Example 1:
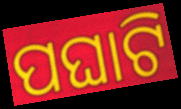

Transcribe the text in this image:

ପଘାଟି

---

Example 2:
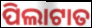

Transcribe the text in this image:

ପିଲାଟାତ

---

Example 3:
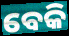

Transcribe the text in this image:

ବେକି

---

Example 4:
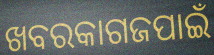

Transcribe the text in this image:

ଖବରକାଗଜପାଇଁ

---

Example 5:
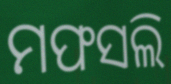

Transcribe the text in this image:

ମଫସଲି